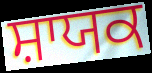
ਸ਼ਾਯਕ